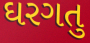
ઘરગતુ